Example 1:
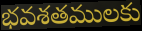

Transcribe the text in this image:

భవశతములకు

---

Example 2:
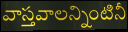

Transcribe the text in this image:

వాస్తవాలన్నింటినీ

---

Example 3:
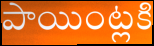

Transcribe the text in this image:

పాయింట్లకి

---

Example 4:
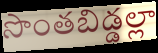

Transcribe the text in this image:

సొంతబిడ్డల్లా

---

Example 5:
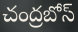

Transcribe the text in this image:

చంద్రబోస్